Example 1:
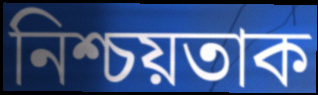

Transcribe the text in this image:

নিশ্চয়তাক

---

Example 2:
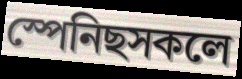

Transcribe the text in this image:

স্পেনিছসকলে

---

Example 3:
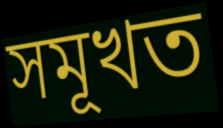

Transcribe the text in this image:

সমূখত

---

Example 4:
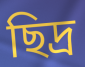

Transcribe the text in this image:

ছিদ্ৰ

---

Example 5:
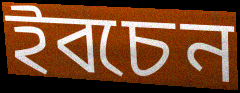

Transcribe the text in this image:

ইবচেন